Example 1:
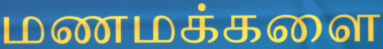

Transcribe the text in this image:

மணமக்களை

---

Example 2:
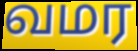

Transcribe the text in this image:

வமர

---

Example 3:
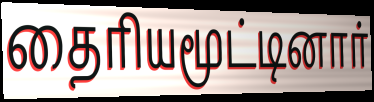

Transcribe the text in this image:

தைரியமூட்டினார்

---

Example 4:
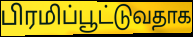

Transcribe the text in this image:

பிரமிப்பூட்டுவதாக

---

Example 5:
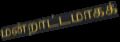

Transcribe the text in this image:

மன்றாட்டமாகக்